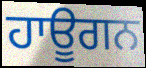
ਹਾਊਗਨ